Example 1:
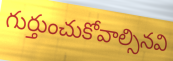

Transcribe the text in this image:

గుర్తుంచుకోవాల్సినవి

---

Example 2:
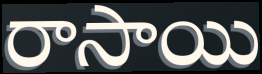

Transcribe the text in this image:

రాసాయి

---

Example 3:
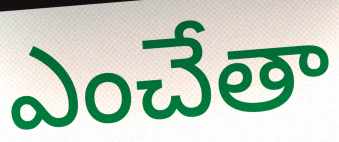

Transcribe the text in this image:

ఎంచేతా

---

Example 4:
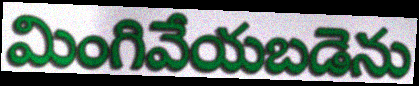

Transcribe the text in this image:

మింగివేయబడెను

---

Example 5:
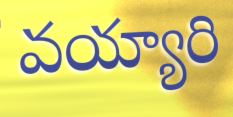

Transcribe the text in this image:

వయ్యారి